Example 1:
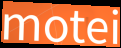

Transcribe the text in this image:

motei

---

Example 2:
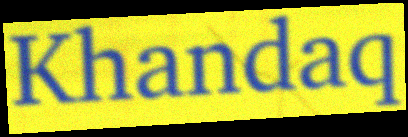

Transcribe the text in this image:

Khandaq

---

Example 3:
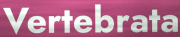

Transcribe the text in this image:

Vertebrata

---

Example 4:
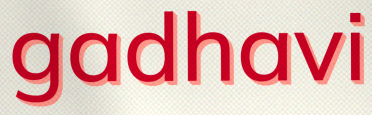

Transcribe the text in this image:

gadhavi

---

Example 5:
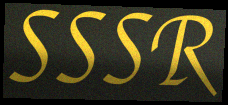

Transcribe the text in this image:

SSSR